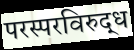
परस्परविरुद्ध